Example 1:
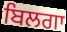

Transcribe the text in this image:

ਬਿਲਗਾ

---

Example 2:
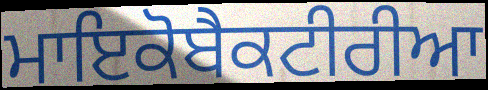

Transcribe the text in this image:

ਮਾਇਕੋਬੈਕਟੀਰੀਆ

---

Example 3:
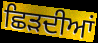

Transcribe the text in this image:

ਛਿੜਦੀਆਂ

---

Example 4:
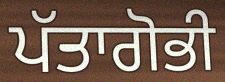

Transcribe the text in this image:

ਪੱਤਾਗੋਭੀ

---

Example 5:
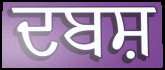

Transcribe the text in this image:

ਦਬਸ਼